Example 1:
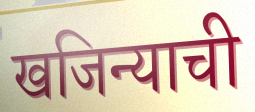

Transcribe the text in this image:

खजिन्याची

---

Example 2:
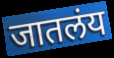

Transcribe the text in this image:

जातलंय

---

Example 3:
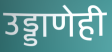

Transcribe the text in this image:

उड्डाणेही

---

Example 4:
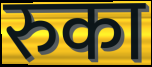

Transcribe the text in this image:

रुका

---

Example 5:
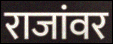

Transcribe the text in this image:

राजांवर